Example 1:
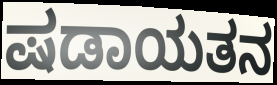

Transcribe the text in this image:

ಷಡಾಯತನ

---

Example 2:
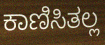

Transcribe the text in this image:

ಕಾಣಿಸಿತಲ್ಲ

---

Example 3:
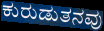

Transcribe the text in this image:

ಕುರುಡುತನವು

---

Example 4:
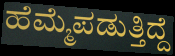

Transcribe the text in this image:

ಹೆಮ್ಮೆಪಡುತ್ತಿದ್ದೆ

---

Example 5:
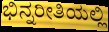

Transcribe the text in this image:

ಭಿನ್ನರೀತಿಯಲ್ಲಿ